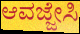
ಆವಜ್ಜೇಸಿ